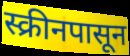
स्क्रीनपासून